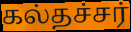
கல்தச்சர்